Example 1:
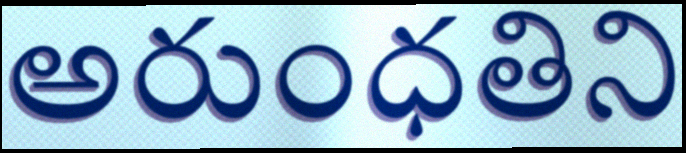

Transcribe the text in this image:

అరుంధతిని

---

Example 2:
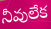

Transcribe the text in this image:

నీవులేక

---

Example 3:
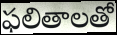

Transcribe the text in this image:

ఫలితాలతో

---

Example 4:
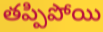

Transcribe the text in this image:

తప్పిపోయి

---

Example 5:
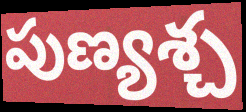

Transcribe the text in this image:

పుణ్యశ్చ